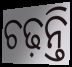
ଚଢ଼ନ୍ତି